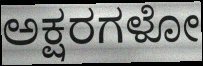
ಅಕ್ಷರಗಳೋ